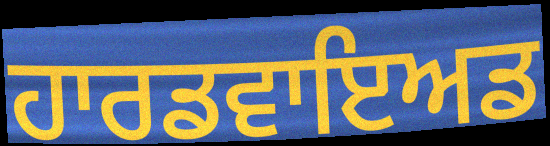
ਹਾਰਡਵਾਇਅਡ